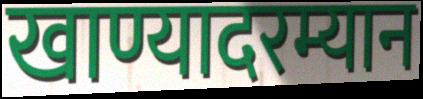
खाण्यादरम्यान